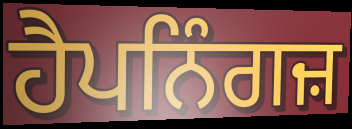
ਹੈਪਨਿੰਗਜ਼